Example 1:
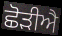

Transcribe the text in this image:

ਛੋੜੀਐ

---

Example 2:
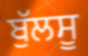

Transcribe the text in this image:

ਬੁੱਲਸੂ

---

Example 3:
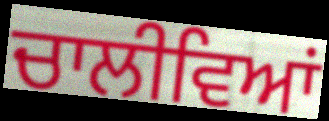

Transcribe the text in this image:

ਚਾਲੀਵਿਆਂ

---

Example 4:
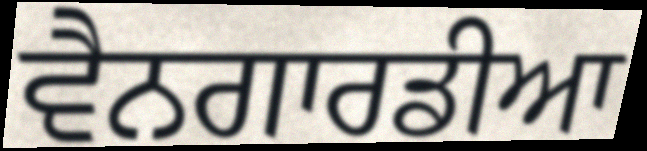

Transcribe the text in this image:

ਵੈਨਗਾਰਡੀਆ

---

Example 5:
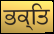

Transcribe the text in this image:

ਭਕ੍ਤਿ